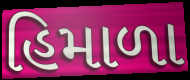
હિમાળા